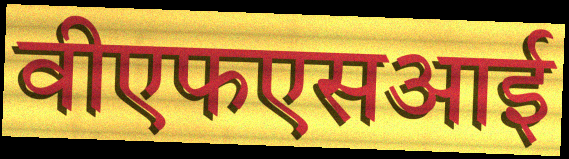
वीएफएसआई